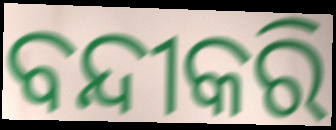
ବନ୍ଦୀକରି